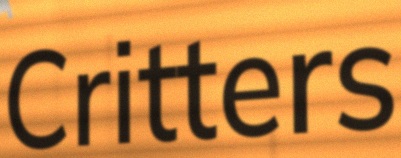
Critters